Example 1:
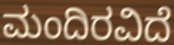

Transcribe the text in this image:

ಮಂದಿರವಿದೆ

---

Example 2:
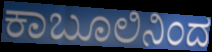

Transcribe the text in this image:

ಕಾಬೂಲಿನಿಂದ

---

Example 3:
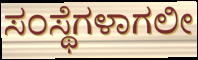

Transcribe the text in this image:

ಸಂಸ್ಥೆಗಳಾಗಲೀ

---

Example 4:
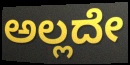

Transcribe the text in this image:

ಅಲ್ಲದೇ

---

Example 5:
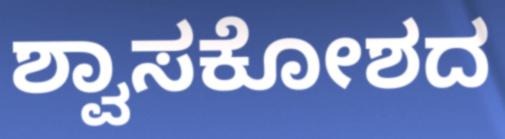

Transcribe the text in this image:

ಶ್ವಾಸಕೋಶದ